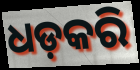
ଧଡ଼କରି